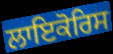
ਲਾਇਕੋਰਿਸ